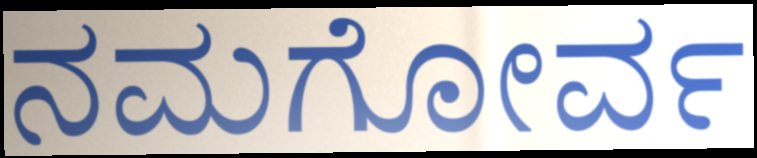
ನಮಗೋರ್ವ